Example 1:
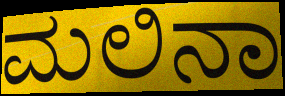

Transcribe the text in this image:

ಮಲಿನಾ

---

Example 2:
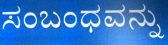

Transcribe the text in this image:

ಸಂಬಂಧವನ್ನು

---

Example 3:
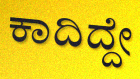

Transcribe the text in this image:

ಕಾದಿದ್ದೇ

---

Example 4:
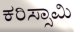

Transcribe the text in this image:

ಕರಿಸ್ಸಾಮಿ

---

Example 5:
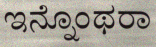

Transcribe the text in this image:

ಇನ್ನೊಂಥರಾ